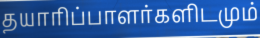
தயாரிப்பாளர்களிடமும்